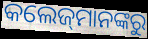
କଲେଜ୍‌ମାନଙ୍କରୁ